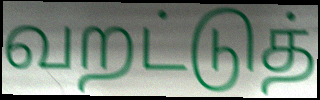
வறட்டுத்